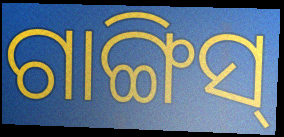
ଗାଙ୍ଗିସ୍